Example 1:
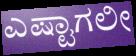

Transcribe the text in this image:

ಎಷ್ಟಾಗಲೀ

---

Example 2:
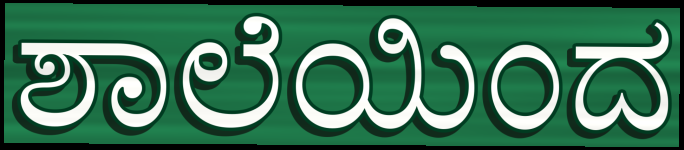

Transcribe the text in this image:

ಶಾಲೆಯಿಂದ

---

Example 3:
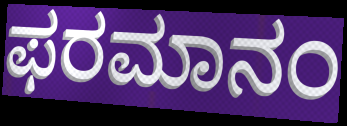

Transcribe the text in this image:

ಫರಮಾನಂ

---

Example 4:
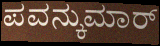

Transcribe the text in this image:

ಪವನ್ಕುಮಾರ್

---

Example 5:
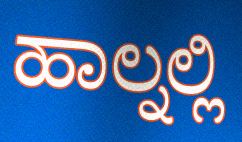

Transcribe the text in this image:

ಹಾಲ್ನಲ್ಲಿ